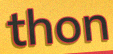
thon